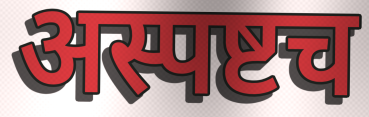
अस्पष्टच